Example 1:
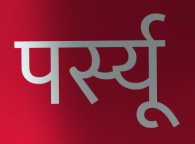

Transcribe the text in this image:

पर्स्यू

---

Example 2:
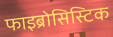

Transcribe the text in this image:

फाइब्रोसिस्टिक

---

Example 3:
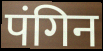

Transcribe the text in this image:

पंगिन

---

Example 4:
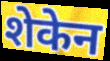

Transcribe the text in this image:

शेकेन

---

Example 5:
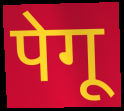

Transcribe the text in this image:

पेगू